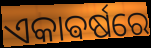
ଏକାଵର୍ଷରେ